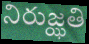
నిరుజ్ఝతి